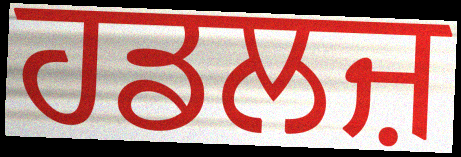
ਹਡਲਜ਼